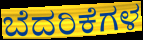
ಬೆದರಿಕೆಗಳ